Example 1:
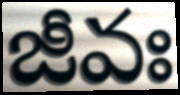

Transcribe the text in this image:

జీవః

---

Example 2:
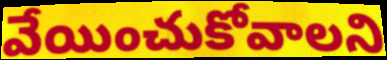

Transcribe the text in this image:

వేయించుకోవాలని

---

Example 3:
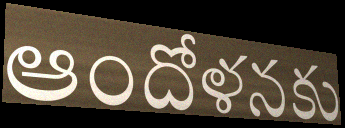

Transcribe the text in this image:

ఆందోళనకు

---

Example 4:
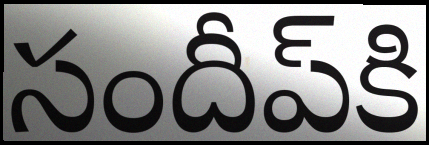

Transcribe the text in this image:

సందీప్‌కి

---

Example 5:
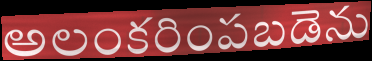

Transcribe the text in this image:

అలంకరింపబడెను